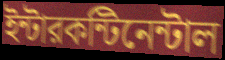
ইন্টারকন্টিনেন্টাল